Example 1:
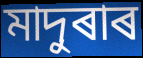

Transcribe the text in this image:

মাদুৰাৰ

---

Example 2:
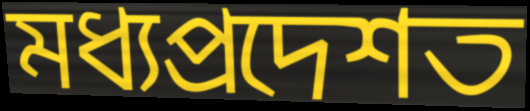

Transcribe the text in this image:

মধ্যপ্ৰদেশত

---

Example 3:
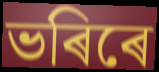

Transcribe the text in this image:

ভৰিৰে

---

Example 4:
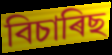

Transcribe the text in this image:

বিচাৰিছ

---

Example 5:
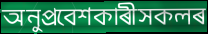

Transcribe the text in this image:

অনুপ্ৰবেশকাৰীসকলৰ